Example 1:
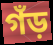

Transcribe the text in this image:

গঁড়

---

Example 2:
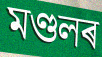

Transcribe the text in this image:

মণ্ডলৰ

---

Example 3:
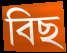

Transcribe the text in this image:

বিছ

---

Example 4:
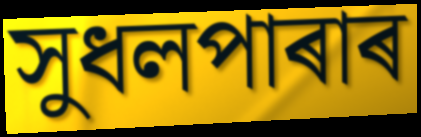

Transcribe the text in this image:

সুধলপাৰাৰ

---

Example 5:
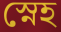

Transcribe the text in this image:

স্নেহ